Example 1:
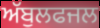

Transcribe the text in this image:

ਅੱਬੁਲਫਜਲ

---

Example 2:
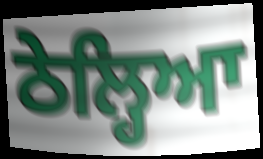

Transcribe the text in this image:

ਠੇਲ੍ਹਿਆ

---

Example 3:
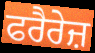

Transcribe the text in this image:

ਫਰੈਰੇਜ਼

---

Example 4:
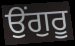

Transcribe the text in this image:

ਉਂਗੁਰੂ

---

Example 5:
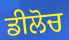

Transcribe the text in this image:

ਡੀਲੋਚ